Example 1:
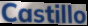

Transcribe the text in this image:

Castillo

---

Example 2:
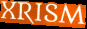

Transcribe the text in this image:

XRISM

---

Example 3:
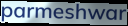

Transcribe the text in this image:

parmeshwar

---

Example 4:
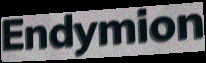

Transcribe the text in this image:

Endymion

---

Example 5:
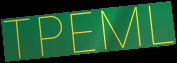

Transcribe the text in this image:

TPEML